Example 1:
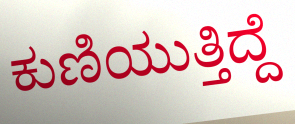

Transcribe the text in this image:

ಕುಣಿಯುತ್ತಿದ್ದೆ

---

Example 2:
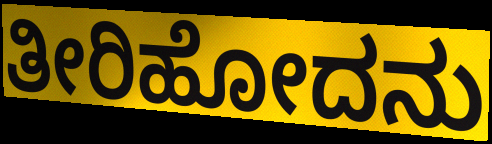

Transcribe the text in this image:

ತೀರಿಹೋದನು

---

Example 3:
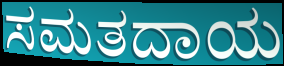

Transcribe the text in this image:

ಸಮತದಾಯ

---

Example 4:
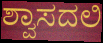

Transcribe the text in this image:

ಶ್ವಾಸದಲಿ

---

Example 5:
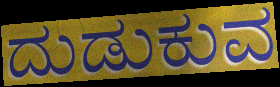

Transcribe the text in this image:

ದುಡುಕುವ